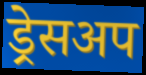
ड्रेसअप